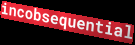
incobsequential